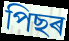
পিছৰ